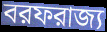
বরফরাজ্য